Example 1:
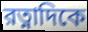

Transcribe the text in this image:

রত্নাদিকে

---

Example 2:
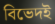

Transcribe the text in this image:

বিভেদই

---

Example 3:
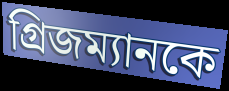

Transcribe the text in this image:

গ্রিজম্যানকে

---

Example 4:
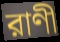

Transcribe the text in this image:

রাণী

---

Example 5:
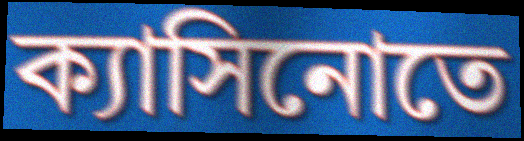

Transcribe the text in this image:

ক্যাসিনোতে